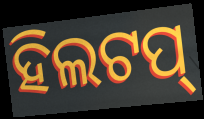
ହିଲଟପ୍